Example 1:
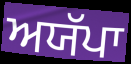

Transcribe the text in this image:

ਅਯੱਪਾ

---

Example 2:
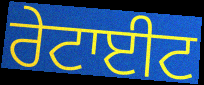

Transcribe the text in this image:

ਰੇਟਾਈਟ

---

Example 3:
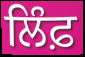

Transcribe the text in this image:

ਲਿੰਫ਼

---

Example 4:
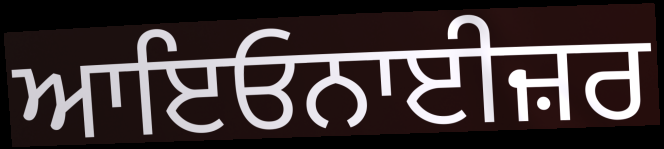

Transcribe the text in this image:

ਆਇਓਨਾਈਜ਼ਰ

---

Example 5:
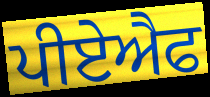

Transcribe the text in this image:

ਪੀਏਐਫ